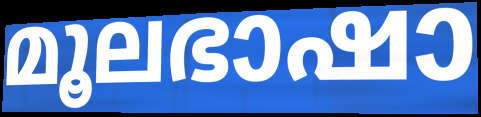
മൂലഭാഷാ